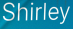
Shirley